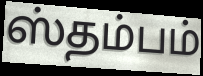
ஸ்தம்பம்